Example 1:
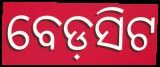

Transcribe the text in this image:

ବେଡ଼ସିଟ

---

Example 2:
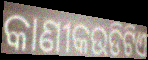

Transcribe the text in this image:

କାଣୀକଉଡିଟିଏ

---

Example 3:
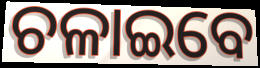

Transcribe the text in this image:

ଚଳାଇବେ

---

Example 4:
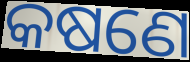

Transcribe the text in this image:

କଷଣେ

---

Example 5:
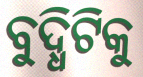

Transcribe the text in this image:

ବୁଦ୍ଧିଟିକୁ